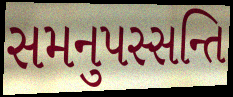
સમનુપસ્સન્તિ